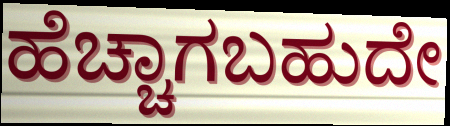
ಹೆಚ್ಚಾಗಬಹುದೇ